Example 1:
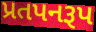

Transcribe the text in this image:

પ્રતપનરૂપ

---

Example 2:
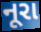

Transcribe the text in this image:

નૂરા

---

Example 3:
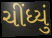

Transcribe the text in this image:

ચીંધ્યું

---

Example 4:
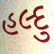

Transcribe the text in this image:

હલ્દુ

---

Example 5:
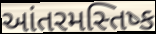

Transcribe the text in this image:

આંતરમસ્તિષ્ક